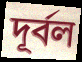
দূর্বল